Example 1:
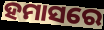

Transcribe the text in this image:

ହମାସରେ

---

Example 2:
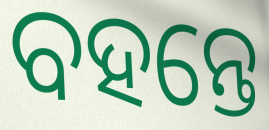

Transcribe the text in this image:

ବହନ୍ତେ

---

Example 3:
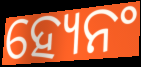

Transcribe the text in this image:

ହ୍ୟେନଂ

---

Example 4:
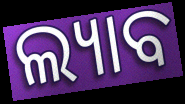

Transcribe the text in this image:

ଲ୍ୟାବ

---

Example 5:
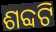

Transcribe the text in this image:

ଶବ୍ଦଟି